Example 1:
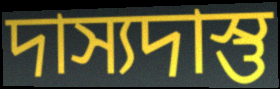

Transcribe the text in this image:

দাস্যদাস্তু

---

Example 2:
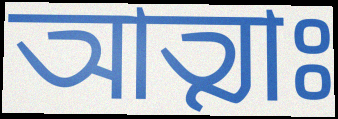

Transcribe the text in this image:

আত্মাঃ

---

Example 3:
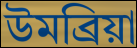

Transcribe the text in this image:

উমব্রিয়া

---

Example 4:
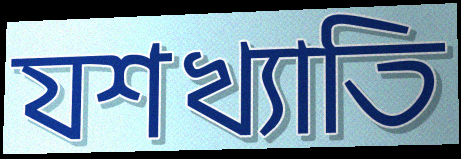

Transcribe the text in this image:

যশখ্যাতি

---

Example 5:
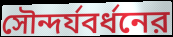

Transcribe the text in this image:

সৌন্দর্যবর্ধনের